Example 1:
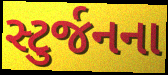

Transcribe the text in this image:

સ્ટુર્જનના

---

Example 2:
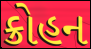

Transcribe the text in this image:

ક્રોહન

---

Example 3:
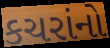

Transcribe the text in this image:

કચરાંનો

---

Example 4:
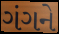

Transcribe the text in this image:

ગંગને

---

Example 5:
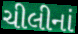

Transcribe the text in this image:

ચીલીનાં